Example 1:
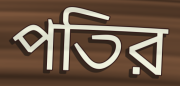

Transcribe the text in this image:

পতির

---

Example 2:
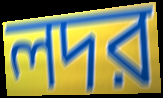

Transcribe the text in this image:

লদর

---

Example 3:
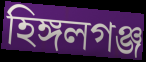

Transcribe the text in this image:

হিঙ্গলগঞ্জ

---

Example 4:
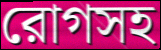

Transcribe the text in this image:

রোগসহ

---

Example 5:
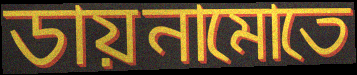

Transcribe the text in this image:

ডায়নামোতে